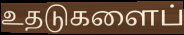
உதடுகளைப்